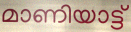
മാണിയാട്ട്